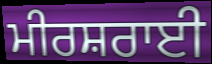
ਮੀਰਸ਼ਰਾਈ